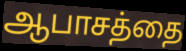
ஆபாசத்தை